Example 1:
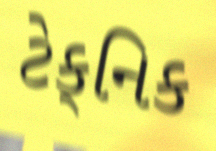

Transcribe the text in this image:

ટેક્‌નિક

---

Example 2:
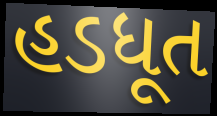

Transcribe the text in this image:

હડધૂત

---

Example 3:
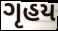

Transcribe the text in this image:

ગૃહય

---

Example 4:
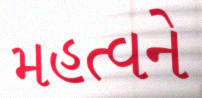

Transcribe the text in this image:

મહત્વને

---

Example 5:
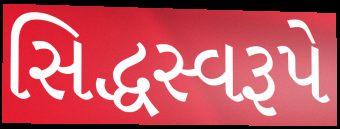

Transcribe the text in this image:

સિદ્ધસ્વરૂપે